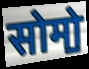
सोमो॒